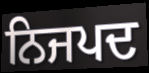
ਨਿਜਪਦ